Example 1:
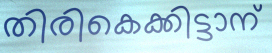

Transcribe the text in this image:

തിരികെക്കിട്ടാന്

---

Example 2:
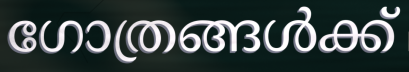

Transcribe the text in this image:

ഗോത്രങ്ങൾക്ക്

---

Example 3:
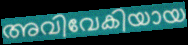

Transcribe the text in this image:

അവിവേകിയായ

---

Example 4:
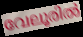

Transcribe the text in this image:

വേലൂരിൽ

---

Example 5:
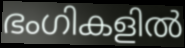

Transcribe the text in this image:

ഭംഗികളിൽ